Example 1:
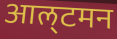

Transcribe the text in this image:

आल्टमन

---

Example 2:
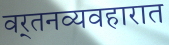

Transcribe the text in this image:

वर्तनव्यवहारात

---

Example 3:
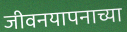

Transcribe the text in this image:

जीवनयापनाच्या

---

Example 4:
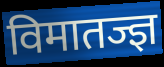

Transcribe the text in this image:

विमातज्ज्ञ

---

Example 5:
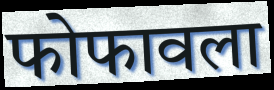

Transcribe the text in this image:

फोफावला